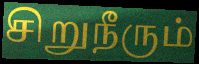
சிறுநீரும்